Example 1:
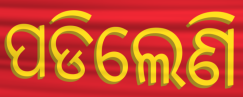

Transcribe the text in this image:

ପଡିଲେଣି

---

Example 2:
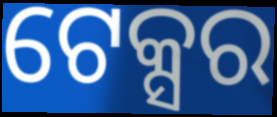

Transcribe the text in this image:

ଟେକ୍ସର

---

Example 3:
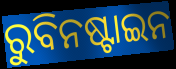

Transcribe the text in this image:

ରୁବିନଷ୍ଟାଇନ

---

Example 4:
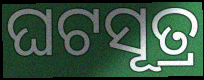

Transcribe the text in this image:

ଘଟସୂତ୍ର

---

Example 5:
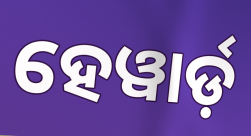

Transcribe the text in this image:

ହେୱାର୍ଡ଼